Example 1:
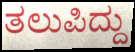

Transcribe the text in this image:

ತಲುಪಿದ್ದು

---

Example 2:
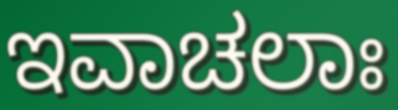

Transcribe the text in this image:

ಇವಾಚಲಾಃ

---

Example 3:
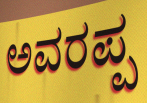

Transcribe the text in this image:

ಅವರಪ್ಪ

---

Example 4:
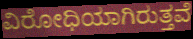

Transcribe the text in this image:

ವಿರೋಧಿಯಾಗಿರುತ್ತವೆ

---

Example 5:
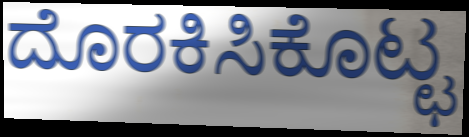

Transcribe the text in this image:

ದೊರಕಿಸಿಕೊಟ್ಟ